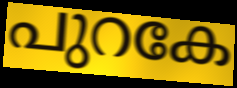
പുറകേ